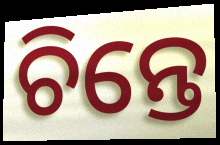
ଚିନ୍ତେ